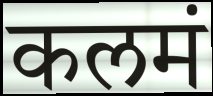
कलमं